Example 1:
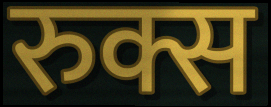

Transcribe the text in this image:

रुक्स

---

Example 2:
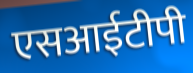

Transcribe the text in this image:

एसआईटीपी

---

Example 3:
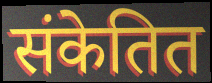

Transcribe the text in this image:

संकेतित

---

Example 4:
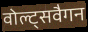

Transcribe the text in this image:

वोल्ट्सवैगन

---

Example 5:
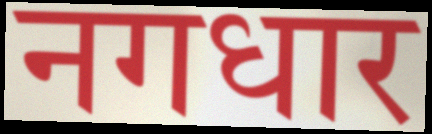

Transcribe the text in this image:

नगधार